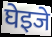
घेइजे